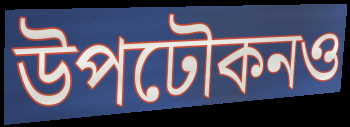
উপঢৌকনও